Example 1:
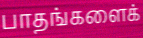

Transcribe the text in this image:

பாதங்களைக்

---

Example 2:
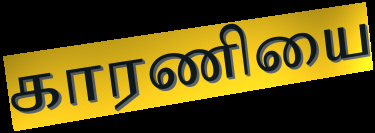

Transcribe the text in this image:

காரணியை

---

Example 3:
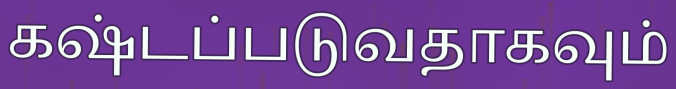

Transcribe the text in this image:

கஷ்டப்படுவதாகவும்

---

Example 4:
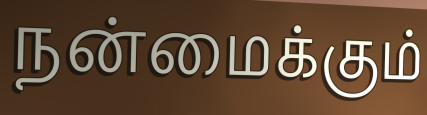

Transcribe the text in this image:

நன்மைக்கும்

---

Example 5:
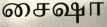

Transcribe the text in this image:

சைஷா